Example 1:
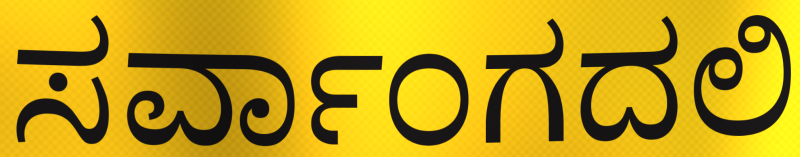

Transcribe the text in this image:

ಸರ್ವಾಂಗದಲಿ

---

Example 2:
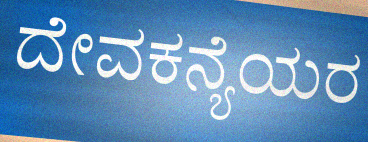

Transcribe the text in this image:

ದೇವಕನ್ಯೆಯರ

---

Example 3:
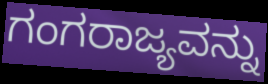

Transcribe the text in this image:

ಗಂಗರಾಜ್ಯವನ್ನು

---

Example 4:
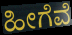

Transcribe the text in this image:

ಹೀಗೆವೆ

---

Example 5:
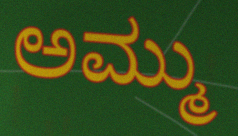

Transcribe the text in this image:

ಅಮ್ಮು